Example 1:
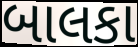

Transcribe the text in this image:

બાલકા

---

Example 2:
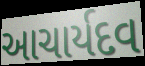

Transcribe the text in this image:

આચાર્યદવ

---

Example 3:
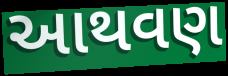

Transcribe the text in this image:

આથવણ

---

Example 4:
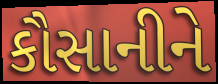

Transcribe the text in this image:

કૌસાનીને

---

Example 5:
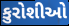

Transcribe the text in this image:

કુરોશીઓ